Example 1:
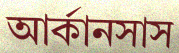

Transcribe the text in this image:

আর্কানসাস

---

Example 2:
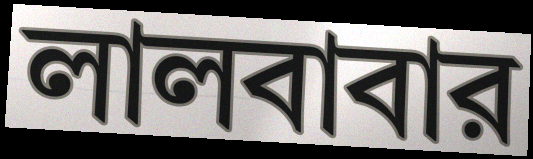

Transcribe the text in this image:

লালবাবার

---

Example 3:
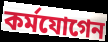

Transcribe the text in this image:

কর্মযোগেন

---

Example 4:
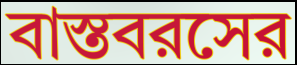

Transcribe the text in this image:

বাস্তবরসের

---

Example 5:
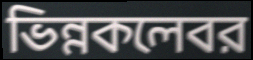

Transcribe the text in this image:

ভিন্নকলেবর